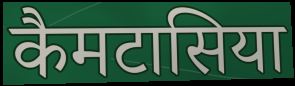
कैमटासिया